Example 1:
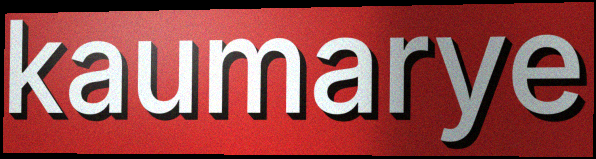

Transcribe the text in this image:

kaumarye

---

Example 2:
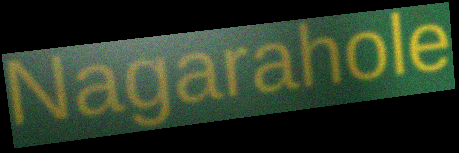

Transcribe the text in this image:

Nagarahole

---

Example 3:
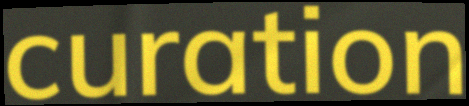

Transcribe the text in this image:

curation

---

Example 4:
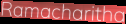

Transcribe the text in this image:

Ramacharitha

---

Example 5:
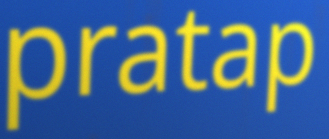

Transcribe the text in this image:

pratap